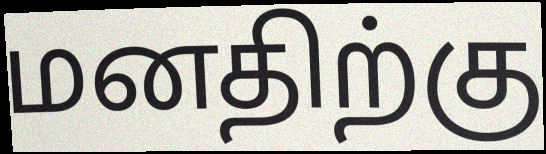
மனதிற்கு